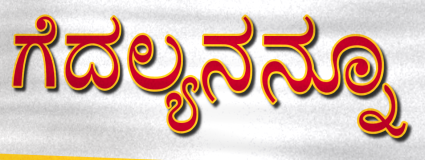
ಗೆದಲ್ಯನನ್ನೂ